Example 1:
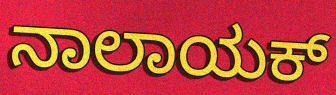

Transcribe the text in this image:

ನಾಲಾಯಕ್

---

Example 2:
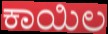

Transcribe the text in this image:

ಕಾಯಿಲ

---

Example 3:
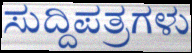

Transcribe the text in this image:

ಸುದ್ದಿಪತ್ರಗಳು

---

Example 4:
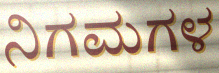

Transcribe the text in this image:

ನಿಗಮಗಳ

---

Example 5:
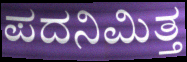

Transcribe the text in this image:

ಪದನಿಮಿತ್ತ